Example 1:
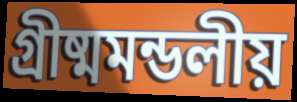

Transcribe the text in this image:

গ্রীষ্মমন্ডলীয়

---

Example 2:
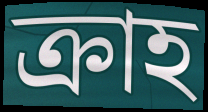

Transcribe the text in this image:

ক্রাহ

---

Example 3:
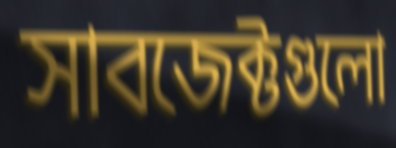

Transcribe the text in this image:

সাবজেক্টগুলো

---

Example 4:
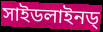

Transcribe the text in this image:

সাইডলাইনড্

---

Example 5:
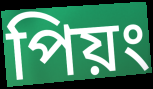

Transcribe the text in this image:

পিয়ং